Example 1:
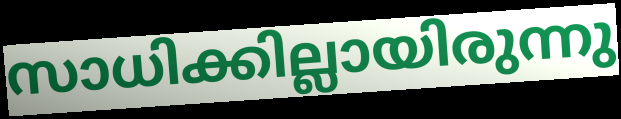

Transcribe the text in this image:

സാധിക്കില്ലായിരുന്നു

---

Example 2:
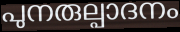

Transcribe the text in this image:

പുനരുല്പാദനം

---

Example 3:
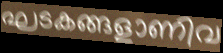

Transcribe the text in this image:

ഘടകങ്ങളാണിവ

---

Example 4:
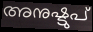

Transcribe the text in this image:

അനുഷ്ടുപ്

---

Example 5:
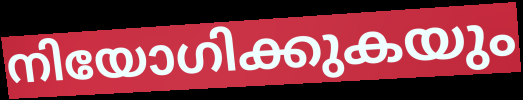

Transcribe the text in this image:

നിയോഗിക്കുകയും